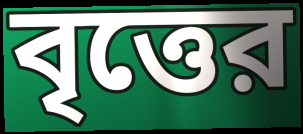
বৃত্তের